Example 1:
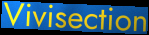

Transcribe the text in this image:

Vivisection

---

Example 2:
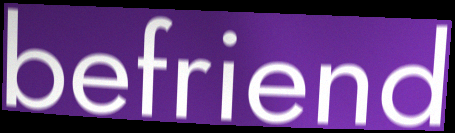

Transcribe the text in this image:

befriend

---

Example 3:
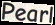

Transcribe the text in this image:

Pearl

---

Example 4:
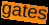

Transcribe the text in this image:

gates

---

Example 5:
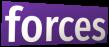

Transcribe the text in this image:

forces